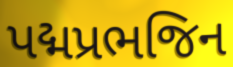
પદ્મપ્રભજિન